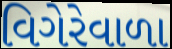
વિગેરેવાળા